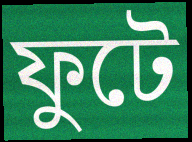
ফুটে